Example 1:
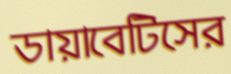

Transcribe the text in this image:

ডায়াবেটিসের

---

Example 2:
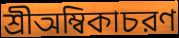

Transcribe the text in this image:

শ্রীঅম্বিকাচরণ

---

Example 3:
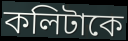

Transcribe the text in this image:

কলিটাকে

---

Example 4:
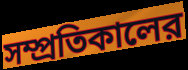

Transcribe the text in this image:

সম্প্রতিকালের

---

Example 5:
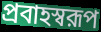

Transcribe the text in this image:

প্রবাহস্বরূপ